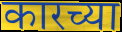
कारच्या